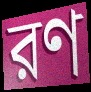
রণ